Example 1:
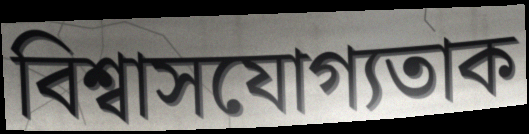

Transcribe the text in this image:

বিশ্বাসযোগ্যতাক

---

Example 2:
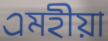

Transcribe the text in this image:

এমহীয়া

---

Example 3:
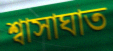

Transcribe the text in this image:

শ্বাসাঘাত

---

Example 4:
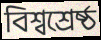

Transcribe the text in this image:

বিশ্বশ্ৰেষ্ঠ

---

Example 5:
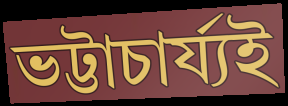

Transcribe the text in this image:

ভট্টাচাৰ্য্যই